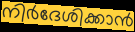
നിർദേശിക്കാൻ